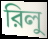
রিলু